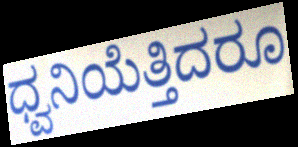
ಧ್ವನಿಯೆತ್ತಿದರೂ